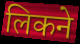
लिकने